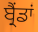
ਬ੍ਰੈਂਡਾਂ